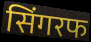
सिंगरफ